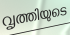
വൃത്തിയുടെ